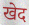
खेद